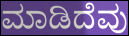
ಮಾಡಿದೆವು